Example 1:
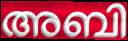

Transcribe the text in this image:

അബി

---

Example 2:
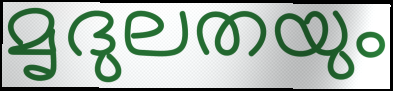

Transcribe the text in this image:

മൃദുലതയും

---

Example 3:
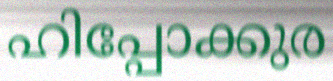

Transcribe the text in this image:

ഹിപ്പോക്കുര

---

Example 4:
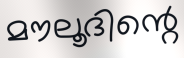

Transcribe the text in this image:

മൗലൂദിന്റെ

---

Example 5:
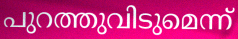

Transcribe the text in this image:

പുറത്തുവിടുമെന്ന്